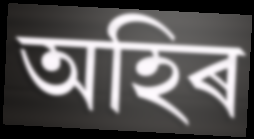
অহিৰ